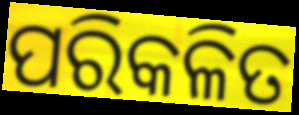
ପରିକଳିତ